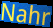
Nahr